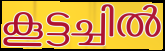
കൂട്ടച്ചിൽ